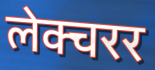
लेक्चरर